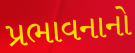
પ્રભાવનાનો